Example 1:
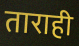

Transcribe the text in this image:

ताराही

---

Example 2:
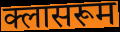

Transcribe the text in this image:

क्लासरूम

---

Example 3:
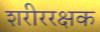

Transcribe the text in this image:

शरीररक्षक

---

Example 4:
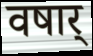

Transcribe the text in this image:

वषार्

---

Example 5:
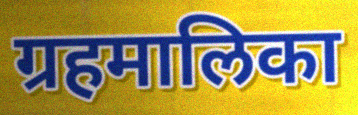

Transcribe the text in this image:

ग्रहमालिका